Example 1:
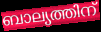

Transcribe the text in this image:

ബാല്യത്തിന്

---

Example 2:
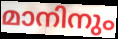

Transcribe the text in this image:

മാനിനും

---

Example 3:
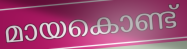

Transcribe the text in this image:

മായകൊണ്ട്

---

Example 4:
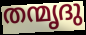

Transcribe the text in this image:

തന്മൃദു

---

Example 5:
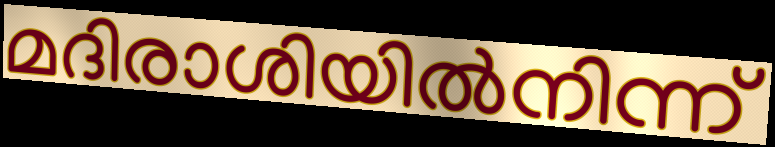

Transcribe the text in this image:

മദിരാശിയിൽനിന്ന്